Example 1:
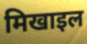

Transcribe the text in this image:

मिखाइल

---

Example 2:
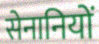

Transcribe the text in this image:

सेनानियों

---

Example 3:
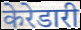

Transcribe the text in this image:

केरेडारी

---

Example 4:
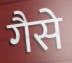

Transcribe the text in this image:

गैसे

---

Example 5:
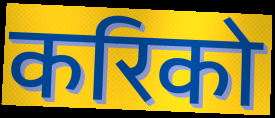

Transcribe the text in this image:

करिको